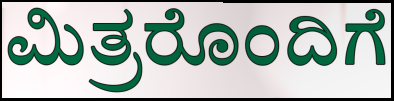
ಮಿತ್ರರೊಂದಿಗೆ